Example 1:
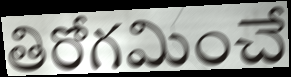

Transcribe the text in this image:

తిరోగమించే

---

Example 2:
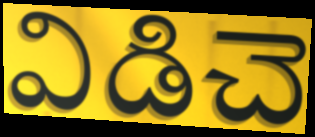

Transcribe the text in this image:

విడిచె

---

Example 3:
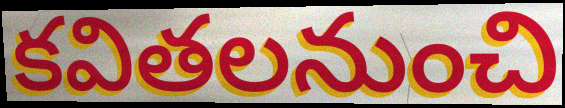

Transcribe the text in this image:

కవితలనుంచి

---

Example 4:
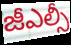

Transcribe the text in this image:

జీఎల్సీ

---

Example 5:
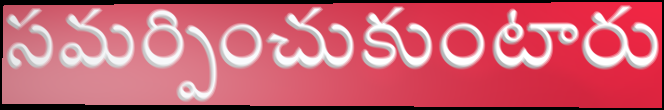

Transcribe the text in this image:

సమర్పించుకుంటారు